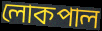
লোকপাল